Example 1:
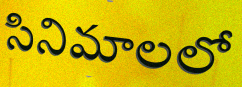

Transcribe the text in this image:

సినిమాలలో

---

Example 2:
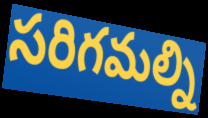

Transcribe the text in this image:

సరిగమల్ని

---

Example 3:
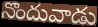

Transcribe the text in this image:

నొందువాడు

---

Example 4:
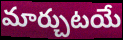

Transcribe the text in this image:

మార్చుటయే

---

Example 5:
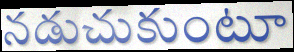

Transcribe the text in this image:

నడుచుకుంటూ